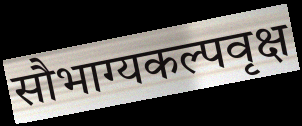
सौभाग्यकल्पवृक्ष